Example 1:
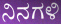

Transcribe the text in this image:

ನಿನಗಳಿ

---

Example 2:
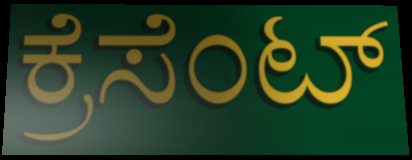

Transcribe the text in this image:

ಕ್ರೆಸೆಂಟ್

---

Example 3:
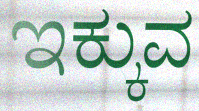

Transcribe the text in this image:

ಇಕ್ಕುವ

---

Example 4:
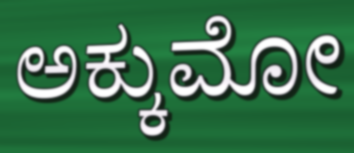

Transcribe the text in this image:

ಅಕ್ಕುಮೋ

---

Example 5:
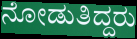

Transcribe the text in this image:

ನೋಡುತಿದ್ದರು